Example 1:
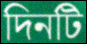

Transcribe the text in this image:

দিনটি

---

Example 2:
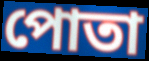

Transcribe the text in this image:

পোতা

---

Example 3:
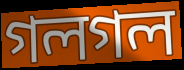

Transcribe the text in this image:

গলগল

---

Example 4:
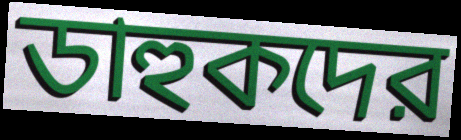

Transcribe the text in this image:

ডাহুকদের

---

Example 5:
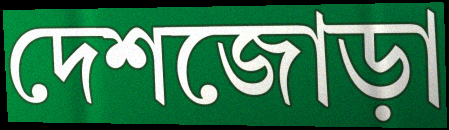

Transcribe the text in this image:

দেশজোড়া